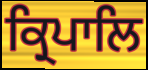
ਕ੍ਰਿਪਾਲਿ